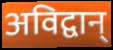
अविद्वान्